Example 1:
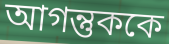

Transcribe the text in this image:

আগন্তুককে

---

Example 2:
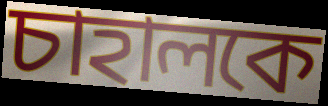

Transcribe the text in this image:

চাহালকে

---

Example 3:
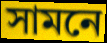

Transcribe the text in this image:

সামনে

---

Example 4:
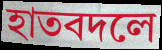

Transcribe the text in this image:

হাতবদলে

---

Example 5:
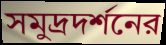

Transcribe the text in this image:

সমুদ্রদর্শনের